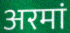
अरमां